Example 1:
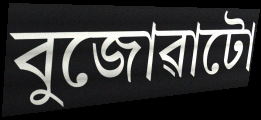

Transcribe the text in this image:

বুজোৱাটো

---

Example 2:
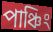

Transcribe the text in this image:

পাঞ্চিং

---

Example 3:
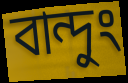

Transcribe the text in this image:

বান্দুং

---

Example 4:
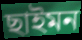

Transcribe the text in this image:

ছাইমন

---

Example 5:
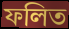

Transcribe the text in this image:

ফলিত